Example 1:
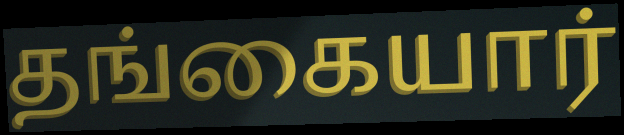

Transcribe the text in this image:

தங்கையார்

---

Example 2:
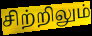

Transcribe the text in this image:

சிற்றிலும்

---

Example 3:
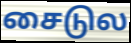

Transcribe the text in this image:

சைடுல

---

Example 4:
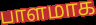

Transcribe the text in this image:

பாளமாக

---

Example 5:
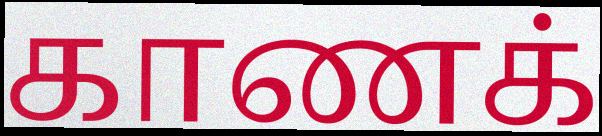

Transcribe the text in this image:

காணக்